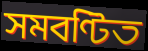
সমবণ্টিত